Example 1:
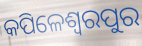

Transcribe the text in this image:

କପିଳେଶ୍ୱରପୁର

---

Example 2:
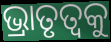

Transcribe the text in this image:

ଭ୍ରାତୃତ୍ୱକୁ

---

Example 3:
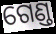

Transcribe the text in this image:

ଗେଣ୍ଡ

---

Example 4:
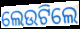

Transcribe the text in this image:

ଲେଉଟିଲେ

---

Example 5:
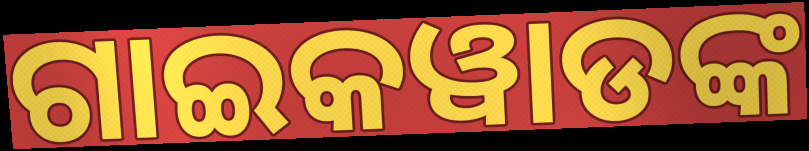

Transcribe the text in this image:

ଗାଇକୱାଡଙ୍କ